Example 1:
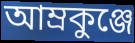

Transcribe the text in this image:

আম্রকুঞ্জে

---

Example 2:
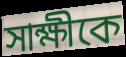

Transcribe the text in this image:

সাক্ষীকে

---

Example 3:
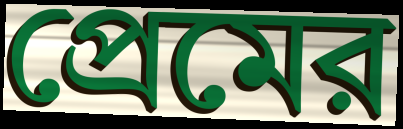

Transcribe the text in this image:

প্রেমের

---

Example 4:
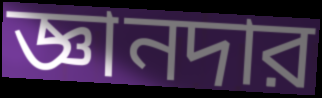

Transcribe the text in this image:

জ্ঞানদার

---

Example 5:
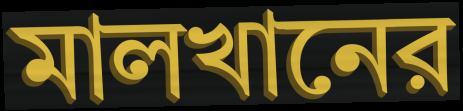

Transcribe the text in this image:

মালখানের